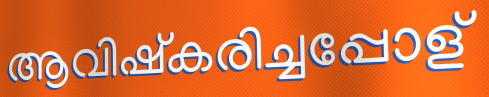
ആവിഷ്കരിച്ചപ്പോള്